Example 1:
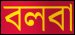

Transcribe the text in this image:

বলবা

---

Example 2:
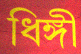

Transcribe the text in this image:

ধিঙ্গী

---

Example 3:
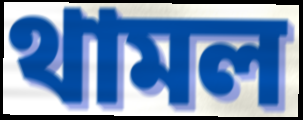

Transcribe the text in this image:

থামল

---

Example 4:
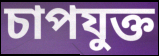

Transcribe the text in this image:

চাপযুক্ত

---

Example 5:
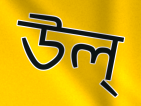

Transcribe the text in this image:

উল্